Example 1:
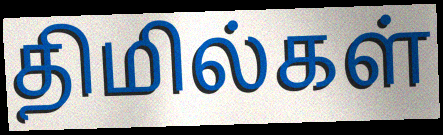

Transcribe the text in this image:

திமில்கள்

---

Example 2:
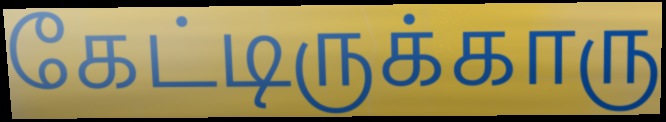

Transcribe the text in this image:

கேட்டிருக்காரு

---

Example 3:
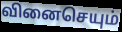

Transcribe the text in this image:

வினைசெயும்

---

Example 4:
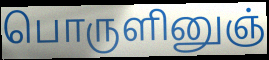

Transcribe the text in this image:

பொருளினுஞ்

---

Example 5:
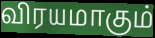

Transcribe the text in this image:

விரயமாகும்